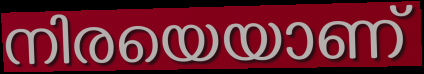
നിരയെയാണ്